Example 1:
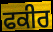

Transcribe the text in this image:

ਫਕੀਰ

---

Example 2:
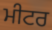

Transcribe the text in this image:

ਮੀਟਰ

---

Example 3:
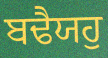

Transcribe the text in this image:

ਬਢੈਯਹੁ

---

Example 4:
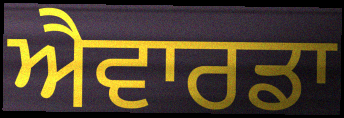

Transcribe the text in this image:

ਐਵਾਰਡਾ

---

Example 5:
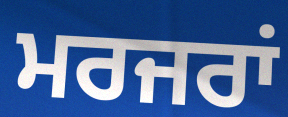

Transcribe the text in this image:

ਮਰਜਰਾਂ